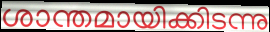
ശാന്തമായിക്കിടന്നു